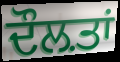
ਦੌਲ਼ਤਾਂ